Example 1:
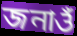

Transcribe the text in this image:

জনাওঁ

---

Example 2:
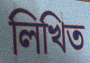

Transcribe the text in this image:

লিখিত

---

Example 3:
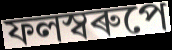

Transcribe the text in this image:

ফলস্বৰুপে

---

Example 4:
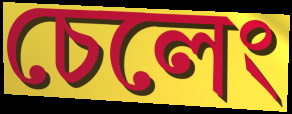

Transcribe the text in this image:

চেলেং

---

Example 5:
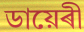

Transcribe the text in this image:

ডায়েৰী